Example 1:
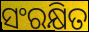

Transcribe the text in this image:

ସଂରକ୍ଷିତ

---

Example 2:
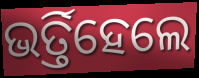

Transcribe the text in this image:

ଭର୍ତ୍ତିହେଲେ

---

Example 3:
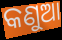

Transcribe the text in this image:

କଣୁଆ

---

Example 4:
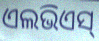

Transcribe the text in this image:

ଏଲଭିଏସ୍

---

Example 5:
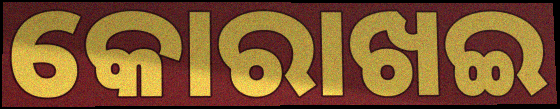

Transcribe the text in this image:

କୋରାଖଇ